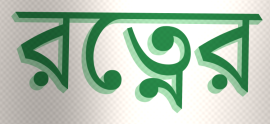
রত্নের